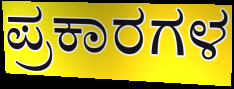
ಪ್ರಕಾರಗಳ